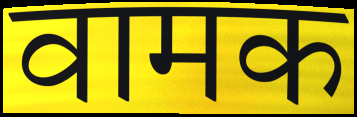
वामक